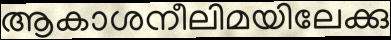
ആകാശനീലിമയിലേക്കു